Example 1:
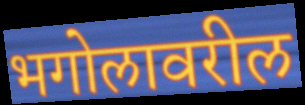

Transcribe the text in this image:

भगोलावरील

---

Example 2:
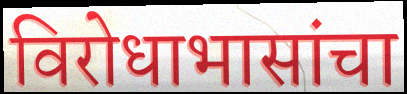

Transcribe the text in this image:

विरोधाभासांचा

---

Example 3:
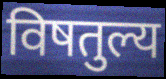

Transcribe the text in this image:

विषतुल्य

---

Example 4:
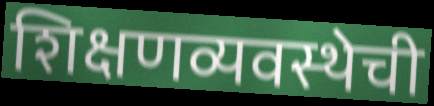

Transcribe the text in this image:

शिक्षणव्यवस्थेची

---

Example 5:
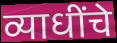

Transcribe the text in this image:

व्याधींचे